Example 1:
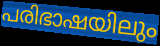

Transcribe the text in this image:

പരിഭാഷയിലും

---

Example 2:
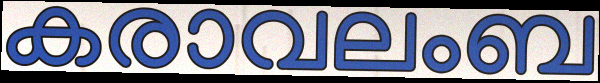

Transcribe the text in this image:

കരാവലംബ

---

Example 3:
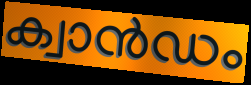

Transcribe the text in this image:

ക്വാൻഡം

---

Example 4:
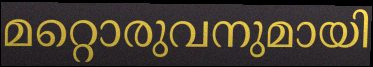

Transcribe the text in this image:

മറ്റൊരുവനുമായി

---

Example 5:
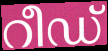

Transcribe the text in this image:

റീഡ്